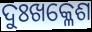
ଦୁଃଖକ୍ଳେଶ